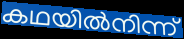
കഥയിൽനിന്ന്